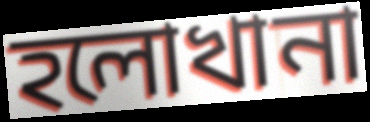
হলোখানা